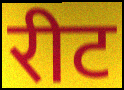
रीट